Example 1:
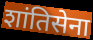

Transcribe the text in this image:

शांतिसेना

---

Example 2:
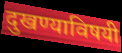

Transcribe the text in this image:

दुखण्याविषयी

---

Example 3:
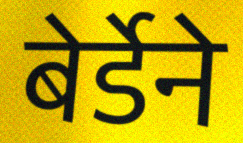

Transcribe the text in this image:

बेर्डेने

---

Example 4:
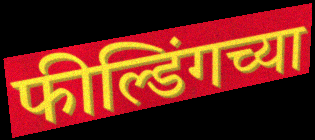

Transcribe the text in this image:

फील्डिंगच्या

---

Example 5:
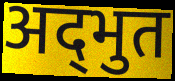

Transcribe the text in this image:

अद्‍भुत